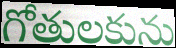
గోతులకును